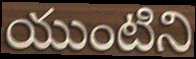
యుంటిని